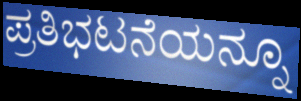
ಪ್ರತಿಭಟನೆಯನ್ನೂ